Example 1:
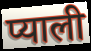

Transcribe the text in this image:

प्याली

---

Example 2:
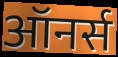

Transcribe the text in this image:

ऑनर्स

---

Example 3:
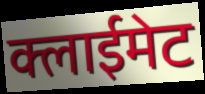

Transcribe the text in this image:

क्लाईमेट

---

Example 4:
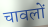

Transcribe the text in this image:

चावलों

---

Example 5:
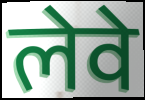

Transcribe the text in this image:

लेवे